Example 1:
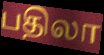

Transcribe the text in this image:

பதிலா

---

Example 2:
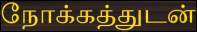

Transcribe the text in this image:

நோக்கத்துடன்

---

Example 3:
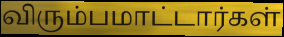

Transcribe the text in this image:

விரும்பமாட்டார்கள்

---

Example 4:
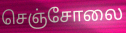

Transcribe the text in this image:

செஞ்சோலை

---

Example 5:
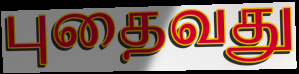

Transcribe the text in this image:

புதைவது